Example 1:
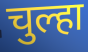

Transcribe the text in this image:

चुल्हा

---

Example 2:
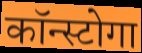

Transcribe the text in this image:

कॉन्स्टोगा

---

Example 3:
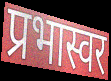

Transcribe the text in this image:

प्रभास्वर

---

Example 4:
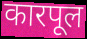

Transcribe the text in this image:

कारपूल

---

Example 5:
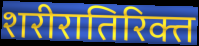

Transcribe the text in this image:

शरीरातिरिक्त